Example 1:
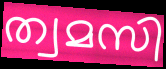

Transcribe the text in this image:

ത്വമസി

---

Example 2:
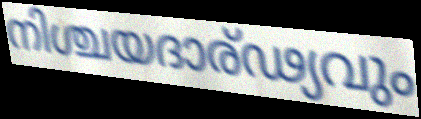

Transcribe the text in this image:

നിശ്ചയദാര്ഢ്യവും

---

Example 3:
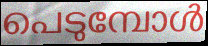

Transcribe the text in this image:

പെടുമ്പോൾ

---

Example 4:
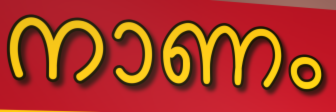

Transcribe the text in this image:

നാണം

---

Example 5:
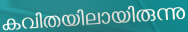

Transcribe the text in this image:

കവിതയിലായിരുന്നു